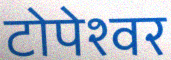
टोपेश्वर